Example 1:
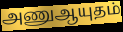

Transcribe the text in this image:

அணுஆயுதம்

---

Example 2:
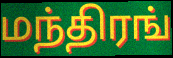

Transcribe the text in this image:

மந்திரங்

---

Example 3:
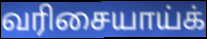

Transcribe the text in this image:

வரிசையாய்க்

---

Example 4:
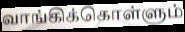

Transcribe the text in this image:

வாங்கிக்கொள்ளும்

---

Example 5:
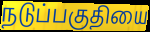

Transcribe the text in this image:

நடுப்பகுதியை